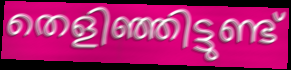
തെളിഞ്ഞിട്ടുണ്ട്